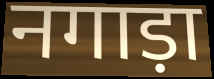
नगाड़ा